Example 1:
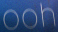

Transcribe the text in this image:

ooh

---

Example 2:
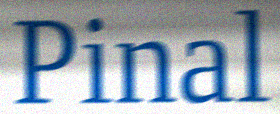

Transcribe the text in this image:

Pinal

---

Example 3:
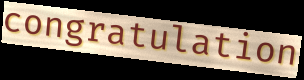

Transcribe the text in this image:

congratulation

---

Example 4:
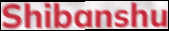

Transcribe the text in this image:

Shibanshu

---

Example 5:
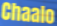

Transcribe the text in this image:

Chaalo